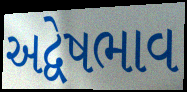
અદ્વેષભાવ